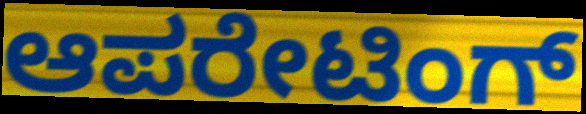
ಆಪರೇಟಿಂಗ್